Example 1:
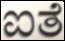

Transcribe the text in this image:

ಐತೆ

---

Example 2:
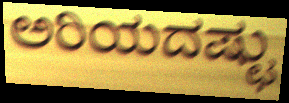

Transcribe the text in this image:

ಅರಿಯದಷ್ಟು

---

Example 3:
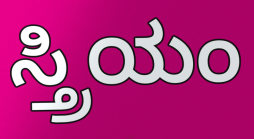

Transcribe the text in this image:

ಸ್ತ್ರಿಯಂ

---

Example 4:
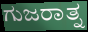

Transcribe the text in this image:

ಗುಜರಾತ್ನ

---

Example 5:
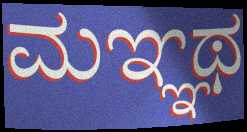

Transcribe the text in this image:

ಮಞ್ಞಥ